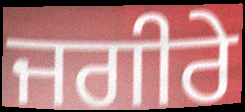
ਜਗੀਰੇ